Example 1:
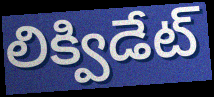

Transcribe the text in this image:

లిక్విడేట్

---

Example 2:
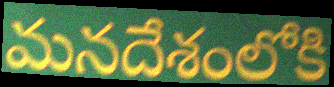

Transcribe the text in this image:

మనదేశంలోకి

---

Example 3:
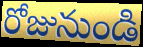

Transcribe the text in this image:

రోజునుండి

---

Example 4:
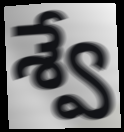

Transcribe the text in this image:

శ్వే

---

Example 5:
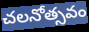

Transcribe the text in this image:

చలనోత్సవం